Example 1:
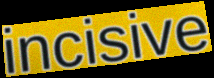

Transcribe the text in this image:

incisive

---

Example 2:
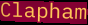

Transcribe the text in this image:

Clapham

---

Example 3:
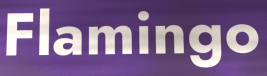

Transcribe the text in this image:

Flamingo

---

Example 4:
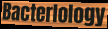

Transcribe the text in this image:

Bacterlology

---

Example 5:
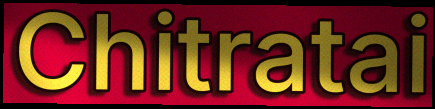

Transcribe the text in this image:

Chitratai